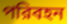
পরিবহন